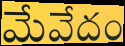
మేవేదం